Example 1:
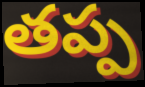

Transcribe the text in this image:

తప్ప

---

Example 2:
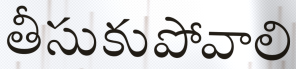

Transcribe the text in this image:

తీసుకుపోవాలి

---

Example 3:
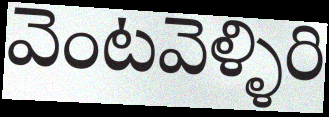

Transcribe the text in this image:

వెంటవెళ్ళిరి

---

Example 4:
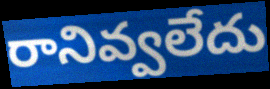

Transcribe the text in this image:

రానివ్వలేదు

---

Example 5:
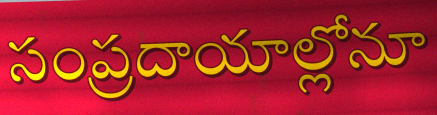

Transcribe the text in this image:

సంప్రదాయాల్లోనూ